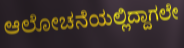
ಆಲೋಚನೆಯಲ್ಲಿದ್ದಾಗಲೇ